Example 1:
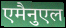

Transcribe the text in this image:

एमैनुएल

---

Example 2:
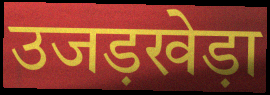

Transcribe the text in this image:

उजड़खेड़ा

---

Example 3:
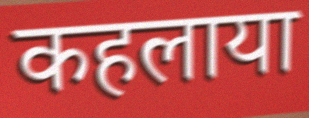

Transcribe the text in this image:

कहलाया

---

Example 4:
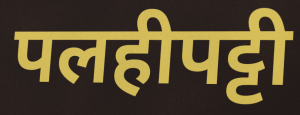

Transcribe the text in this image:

पलहीपट्टी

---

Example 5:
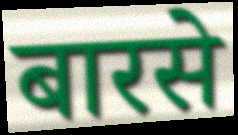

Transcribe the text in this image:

बारसे